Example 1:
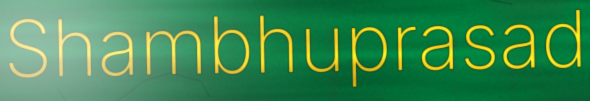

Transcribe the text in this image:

Shambhuprasad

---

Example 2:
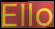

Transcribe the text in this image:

Ello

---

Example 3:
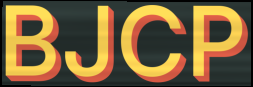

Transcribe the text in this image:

BJCP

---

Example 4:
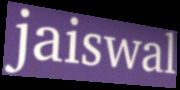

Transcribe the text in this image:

jaiswal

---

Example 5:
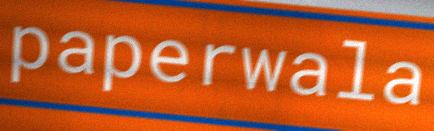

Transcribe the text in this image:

paperwala